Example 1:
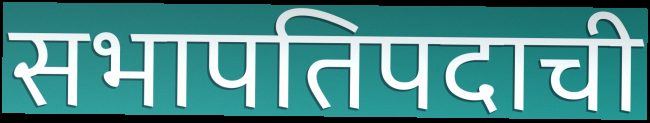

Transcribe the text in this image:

सभापतिपदाची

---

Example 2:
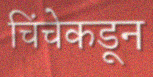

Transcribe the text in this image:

चिंचेकडून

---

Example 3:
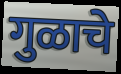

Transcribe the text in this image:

गुळाचे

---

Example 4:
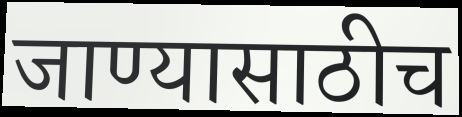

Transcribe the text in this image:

जाण्यासाठीच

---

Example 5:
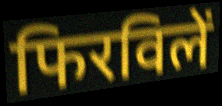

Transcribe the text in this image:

फिरविलें